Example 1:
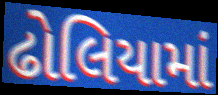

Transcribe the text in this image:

ઢોલિયામાં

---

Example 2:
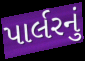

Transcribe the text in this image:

પાર્લરનું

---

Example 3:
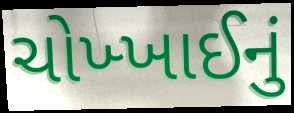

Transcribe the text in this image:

ચોખ્ખાઈનું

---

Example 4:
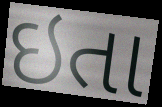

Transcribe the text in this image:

ઇતા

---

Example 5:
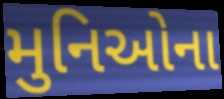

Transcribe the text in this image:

મુનિઓના